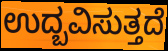
ಉದ್ಬವಿಸುತ್ತದೆ